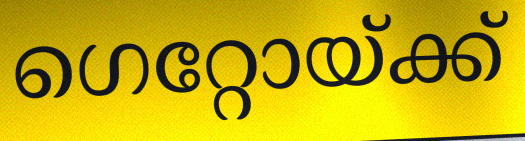
ഗെറ്റോയ്ക്ക്